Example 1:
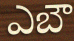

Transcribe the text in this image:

ఎబౌ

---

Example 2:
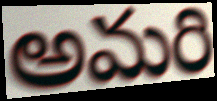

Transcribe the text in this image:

అమరి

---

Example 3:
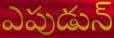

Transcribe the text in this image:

ఎపుడున్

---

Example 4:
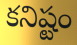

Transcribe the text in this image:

కనిష్టం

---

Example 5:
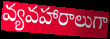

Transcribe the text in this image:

వ్యవహారాలుగా